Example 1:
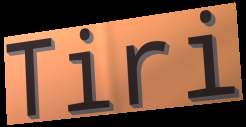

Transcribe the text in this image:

Tiri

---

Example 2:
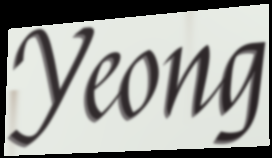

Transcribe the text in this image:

Yeong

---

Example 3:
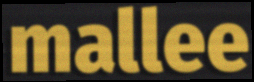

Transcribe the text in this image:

mallee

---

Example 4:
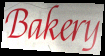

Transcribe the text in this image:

Bakery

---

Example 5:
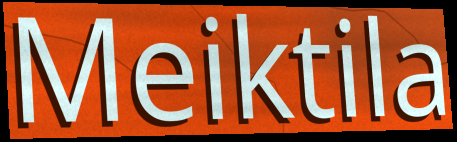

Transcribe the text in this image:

Meiktila